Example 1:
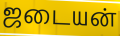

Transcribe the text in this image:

ஜடையன்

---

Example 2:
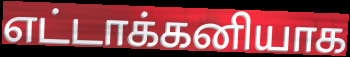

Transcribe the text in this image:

எட்டாக்கனியாக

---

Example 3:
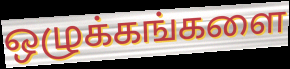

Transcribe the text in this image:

ஒழுக்கங்களை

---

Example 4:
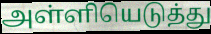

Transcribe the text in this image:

அள்ளியெடுத்து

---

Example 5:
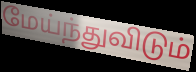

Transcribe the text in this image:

மேய்ந்துவிடும்